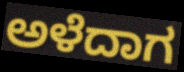
ಅಳೆದಾಗ